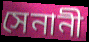
সেনানী